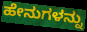
ಹೇನುಗಳನ್ನು